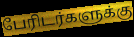
பேரிடர்களுக்கு